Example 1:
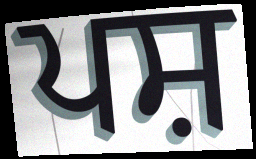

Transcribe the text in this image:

ਪਸ਼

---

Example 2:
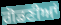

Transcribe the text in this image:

ਗੋਡਣੀਆਂ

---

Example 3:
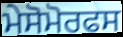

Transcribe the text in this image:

ਮੇਸੋਮੋਰਫਸ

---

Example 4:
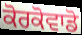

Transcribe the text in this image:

ਕੋਰਕੋਵਾਡੋ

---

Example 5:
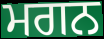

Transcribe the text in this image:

ਮਗਨ